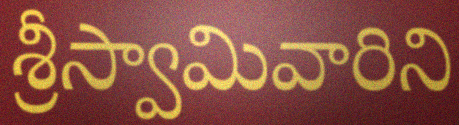
శ్రీస్వామివారిని